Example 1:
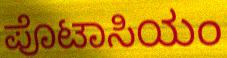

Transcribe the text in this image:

ಪೊಟಾಸಿಯಂ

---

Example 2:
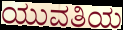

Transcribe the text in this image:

ಯುವತಿಯ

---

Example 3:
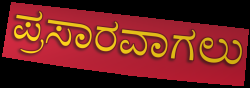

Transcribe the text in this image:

ಪ್ರಸಾರವಾಗಲು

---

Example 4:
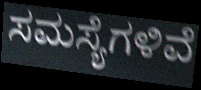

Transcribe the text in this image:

ಸಮಸ್ಯೆಗಳಿವೆ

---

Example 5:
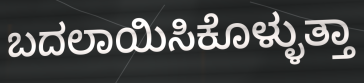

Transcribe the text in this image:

ಬದಲಾಯಿಸಿಕೊಳ್ಳುತ್ತಾ